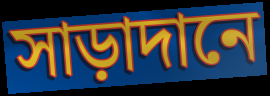
সাড়াদানে